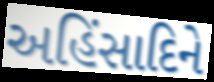
અહિંસાદિને